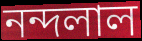
নন্দলাল